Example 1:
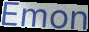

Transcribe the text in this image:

Emon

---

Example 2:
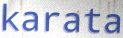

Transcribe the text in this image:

karata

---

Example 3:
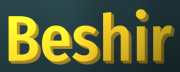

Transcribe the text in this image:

Beshir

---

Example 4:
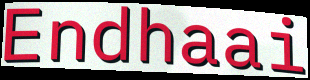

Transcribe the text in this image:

Endhaai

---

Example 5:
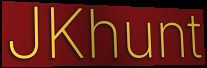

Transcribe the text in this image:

JKhunt